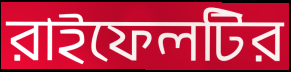
রাইফেলটির